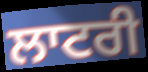
ਲਾਟਰੀ